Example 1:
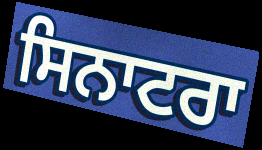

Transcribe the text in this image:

ਸਿਨਾਟਰਾ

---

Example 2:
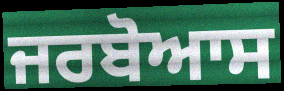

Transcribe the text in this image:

ਜਰਬੋਆਸ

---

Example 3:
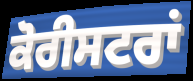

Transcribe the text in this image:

ਕੋਰੀਸਟਰਾਂ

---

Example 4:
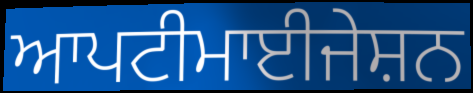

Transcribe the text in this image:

ਆਪਟੀਮਾਈਜੇਸ਼ਨ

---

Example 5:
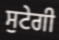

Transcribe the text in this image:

ਸੁਟੇਗੀ